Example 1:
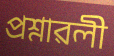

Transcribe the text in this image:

প্ৰশ্নাৱলী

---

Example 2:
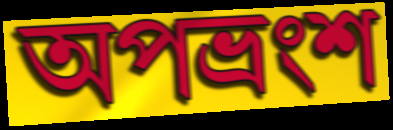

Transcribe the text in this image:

অপভ্ৰংশ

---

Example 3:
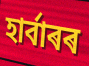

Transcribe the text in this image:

হাৰ্বাৰৰ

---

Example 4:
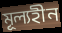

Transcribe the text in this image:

মূল্যহীন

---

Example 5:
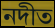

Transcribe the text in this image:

নদীত